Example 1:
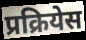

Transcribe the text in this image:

प्रक्रियेस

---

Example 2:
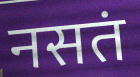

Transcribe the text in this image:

नसतं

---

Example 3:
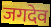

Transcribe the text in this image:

जगदेव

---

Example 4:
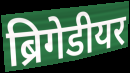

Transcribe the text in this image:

ब्रिगेडीयर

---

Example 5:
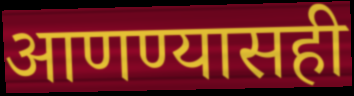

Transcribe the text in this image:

आणण्यासही